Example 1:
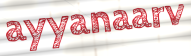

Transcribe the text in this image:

ayyanaarv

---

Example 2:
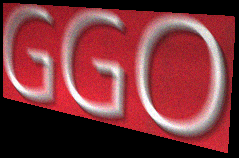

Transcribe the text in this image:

GGO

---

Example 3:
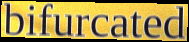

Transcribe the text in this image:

bifurcated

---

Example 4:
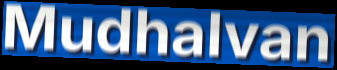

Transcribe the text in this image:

Mudhalvan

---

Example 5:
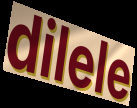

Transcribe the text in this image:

dilele